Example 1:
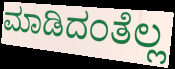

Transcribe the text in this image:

ಮಾಡಿದಂತೆಲ್ಲ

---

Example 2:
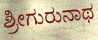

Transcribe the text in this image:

ಶ್ರೀಗುರುನಾಥ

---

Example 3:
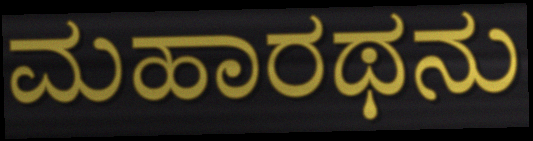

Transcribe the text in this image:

ಮಹಾರಥನು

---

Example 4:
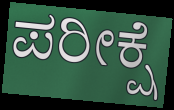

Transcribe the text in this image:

ಪರೀಕ್ಷೆ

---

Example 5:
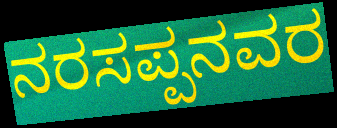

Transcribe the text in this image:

ನರಸಪ್ಪನವರ